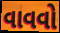
વાવવો